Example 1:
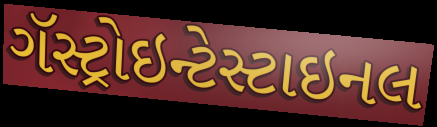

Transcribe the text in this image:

ગૅસ્ટ્રોઇન્ટેસ્ટાઇનલ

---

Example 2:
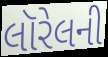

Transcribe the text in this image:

લૉરેલની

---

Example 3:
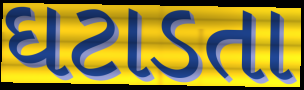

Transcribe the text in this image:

ઘટાડતા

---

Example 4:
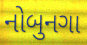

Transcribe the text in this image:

નોબુનગા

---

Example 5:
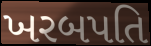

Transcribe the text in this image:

ખરબપતિ